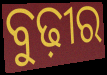
ବୁଢ଼ୀର